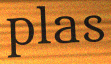
plas